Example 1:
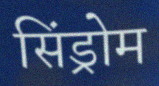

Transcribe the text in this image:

सिंड्रोम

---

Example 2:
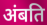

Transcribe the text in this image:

अंबति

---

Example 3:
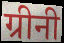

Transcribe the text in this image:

ग्रीनी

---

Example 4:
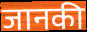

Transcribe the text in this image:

जानकी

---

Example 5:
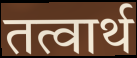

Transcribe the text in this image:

तत्वार्थ